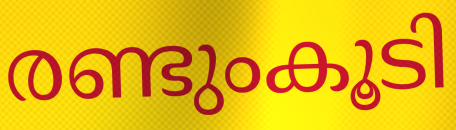
രണ്ടുംകൂടി